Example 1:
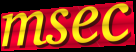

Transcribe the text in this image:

msec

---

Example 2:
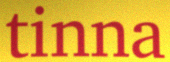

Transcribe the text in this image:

tinna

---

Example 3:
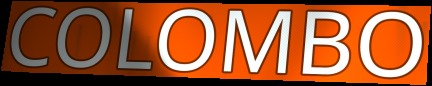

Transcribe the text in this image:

COLOMBO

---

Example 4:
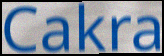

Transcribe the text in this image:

Cakra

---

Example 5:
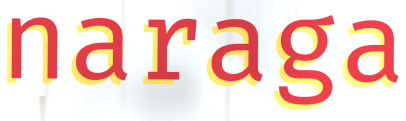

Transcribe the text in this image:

naraga